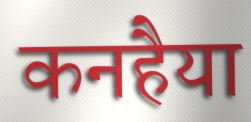
कनहैया